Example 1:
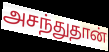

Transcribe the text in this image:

அசந்துதான்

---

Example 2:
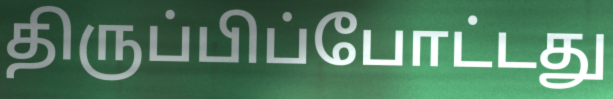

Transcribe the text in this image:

திருப்பிப்போட்டது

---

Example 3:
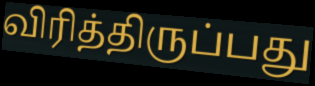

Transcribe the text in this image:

விரித்திருப்பது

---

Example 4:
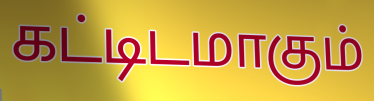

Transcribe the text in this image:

கட்டிடமாகும்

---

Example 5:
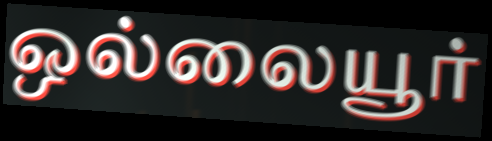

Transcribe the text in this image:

ஒல்லையூர்